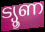
ട്യൂണ